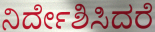
ನಿರ್ದೇಶಿಸಿದರೆ